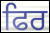
ਫਿਰ